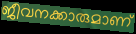
ജീവനക്കാരുമാണ്